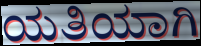
ಯತಿಯಾಗಿ